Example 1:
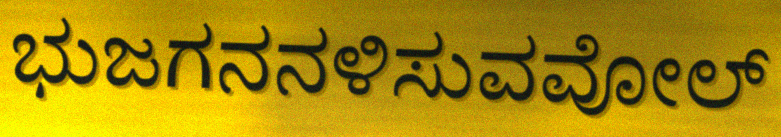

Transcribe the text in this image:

ಭುಜಗನನಳಿಸುವವೋಲ್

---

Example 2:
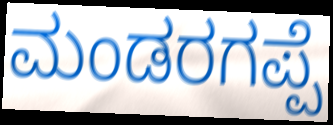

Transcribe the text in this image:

ಮಂಡರಗಪ್ಪೆ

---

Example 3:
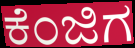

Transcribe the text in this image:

ಕೆಂಜಿಗ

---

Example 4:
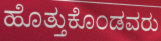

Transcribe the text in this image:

ಹೊತ್ತುಕೊಂಡವರು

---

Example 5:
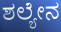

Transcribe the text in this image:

ಶಲ್ಯೇನ